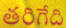
తరిగేది